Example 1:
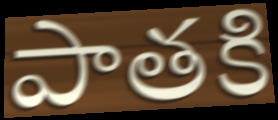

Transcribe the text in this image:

పాతకి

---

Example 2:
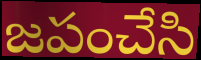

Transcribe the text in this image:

జపంచేసి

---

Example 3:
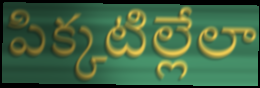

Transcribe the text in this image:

పిక్కటిల్లేలా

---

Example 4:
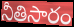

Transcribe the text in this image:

నీతిసారం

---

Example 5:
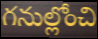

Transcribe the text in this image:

గనుల్లోంచి